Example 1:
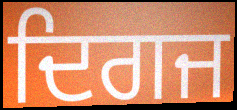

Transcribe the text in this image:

ਦਿਗਜ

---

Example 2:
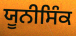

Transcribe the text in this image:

ਯੂਨੀਸਿੰਕ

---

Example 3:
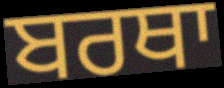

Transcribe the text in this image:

ਬਰਥਾ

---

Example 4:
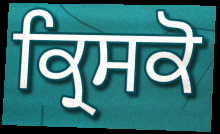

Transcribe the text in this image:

ਕ੍ਰਿਸਕੋ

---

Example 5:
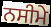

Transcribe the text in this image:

ਨਸੀਮੇ